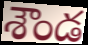
శౌండ